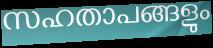
സഹതാപങ്ങളും